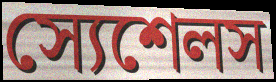
স্যেশেলস